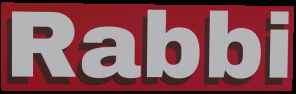
Rabbi